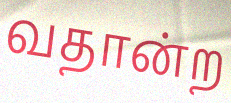
வதான்ற